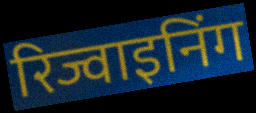
रिज्वाइनिंग